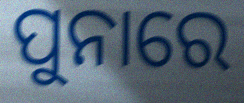
ପୁନାରେ